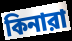
কিনারা